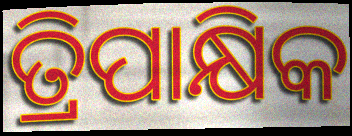
ତ୍ରିପାକ୍ଷିକ